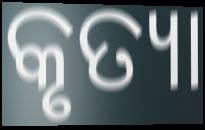
କୃତ୍ୟା